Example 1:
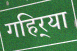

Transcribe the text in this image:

गहिर्या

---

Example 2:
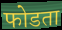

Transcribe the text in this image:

फोडता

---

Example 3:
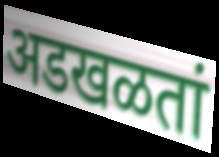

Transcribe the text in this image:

अडखळतां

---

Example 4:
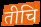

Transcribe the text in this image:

तीचि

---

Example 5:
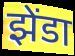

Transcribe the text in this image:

झेंडा